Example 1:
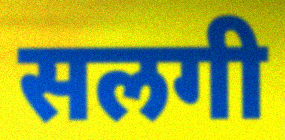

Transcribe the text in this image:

सलगी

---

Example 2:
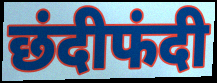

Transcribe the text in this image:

छंदीफंदी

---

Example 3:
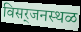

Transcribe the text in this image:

विसर्जनस्थळ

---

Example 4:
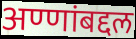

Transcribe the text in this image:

अण्णांबद्दल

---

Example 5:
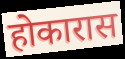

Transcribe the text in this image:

होकारास